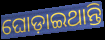
ଘୋଡ଼ାଇଥାନ୍ତି